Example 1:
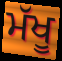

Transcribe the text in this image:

ਮੱਖੂ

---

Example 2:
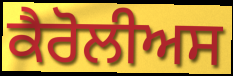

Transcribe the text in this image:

ਕੈਰੋਲੀਅਸ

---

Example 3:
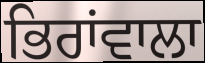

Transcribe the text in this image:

ਭਿਰਾਂਵਾਲਾ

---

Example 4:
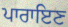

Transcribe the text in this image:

ਪਾਰਾਇਣ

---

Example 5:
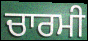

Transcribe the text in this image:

ਚਾਰਮੀ